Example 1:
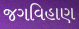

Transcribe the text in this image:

જગવિહાણ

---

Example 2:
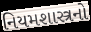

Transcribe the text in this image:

નિયમશાસ્ત્રનો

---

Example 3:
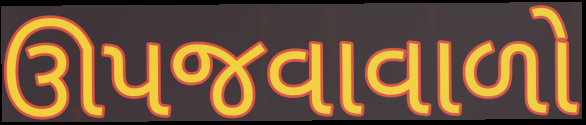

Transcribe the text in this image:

ઊપજવાવાળો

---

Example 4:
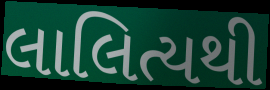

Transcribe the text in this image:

લાલિત્યથી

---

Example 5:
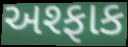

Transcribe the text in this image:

અશ્ફાક